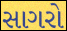
સાગરો